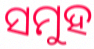
ସମୁହ